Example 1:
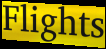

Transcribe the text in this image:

Flights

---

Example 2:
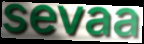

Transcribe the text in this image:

sevaa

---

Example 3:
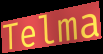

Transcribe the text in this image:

Telma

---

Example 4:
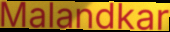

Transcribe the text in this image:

Malandkar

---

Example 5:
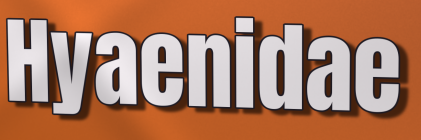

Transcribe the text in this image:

Hyaenidae